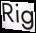
Rig